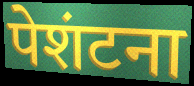
पेशंटना